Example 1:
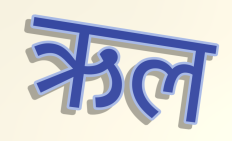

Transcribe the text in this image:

ऋल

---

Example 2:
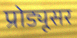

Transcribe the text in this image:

प्रोड्यूसर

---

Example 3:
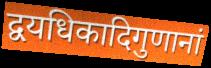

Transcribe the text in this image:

द्वयधिकादिगुणानां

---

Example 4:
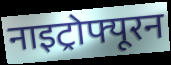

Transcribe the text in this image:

नाइट्रोफ्यूरन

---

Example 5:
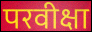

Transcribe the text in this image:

परवीक्षा